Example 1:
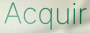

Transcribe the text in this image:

Acquir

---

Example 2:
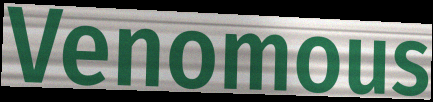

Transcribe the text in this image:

Venomous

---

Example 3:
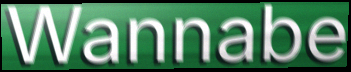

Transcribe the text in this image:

Wannabe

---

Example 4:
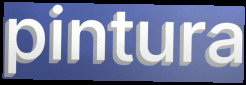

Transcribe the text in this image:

pintura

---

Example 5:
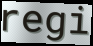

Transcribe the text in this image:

regi